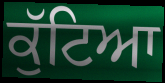
ਕੁੱਟਿਆ